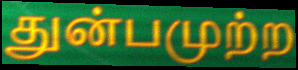
துன்பமுற்ற